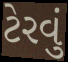
ટેરવું